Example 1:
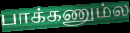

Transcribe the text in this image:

பாக்கணும்ல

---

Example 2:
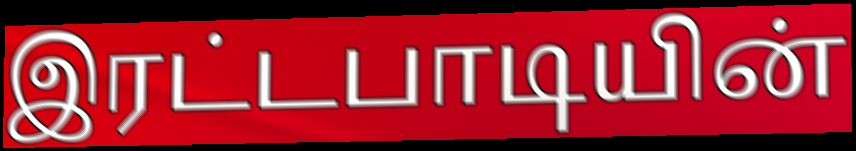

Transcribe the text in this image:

இரட்டபாடியின்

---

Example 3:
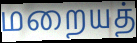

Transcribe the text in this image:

மறையத்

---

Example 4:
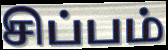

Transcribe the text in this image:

சிப்பம்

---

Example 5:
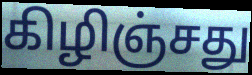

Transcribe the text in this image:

கிழிஞ்சது